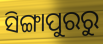
ସିଙ୍ଗାପୁରରୁ